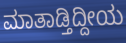
ಮಾತಾಡ್ತಿದ್ದೀಯ